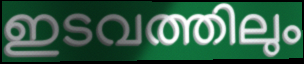
ഇടവത്തിലും